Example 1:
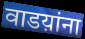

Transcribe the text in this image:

वाडय़ांना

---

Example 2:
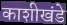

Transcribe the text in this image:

काशीखंडे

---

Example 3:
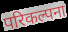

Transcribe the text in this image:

परिकल्पना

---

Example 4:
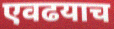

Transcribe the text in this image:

एवढयाच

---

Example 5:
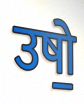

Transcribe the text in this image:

उषो॒